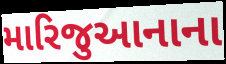
મારિજુઆનાના